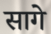
सागे